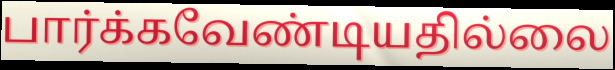
பார்க்கவேண்டியதில்லை